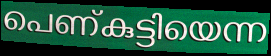
പെണ്കുട്ടിയെന്ന